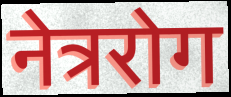
नेत्ररोग